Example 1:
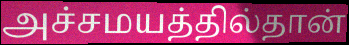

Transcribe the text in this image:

அச்சமயத்தில்தான்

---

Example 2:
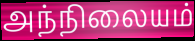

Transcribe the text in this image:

அந்நிலையம்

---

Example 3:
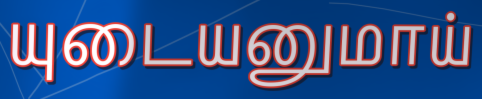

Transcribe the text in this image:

யுடையனுமாய்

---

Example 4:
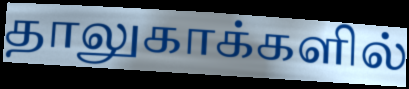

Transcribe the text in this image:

தாலுகாக்களில்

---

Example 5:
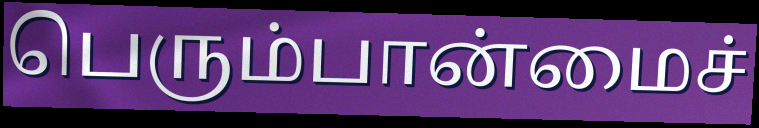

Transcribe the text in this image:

பெரும்பான்மைச்